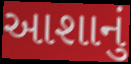
આશાનું